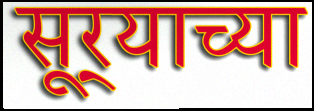
सूर्याच्या